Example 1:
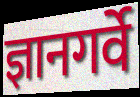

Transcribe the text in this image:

ज्ञानगर्वे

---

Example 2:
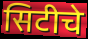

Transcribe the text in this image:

सिटीचे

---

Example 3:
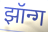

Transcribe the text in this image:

झॉन्ग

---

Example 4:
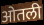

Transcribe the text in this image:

ओतली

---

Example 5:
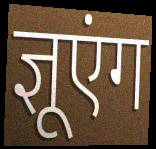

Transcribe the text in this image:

ज्ञूएंग